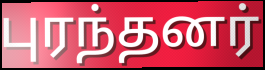
புரந்தனர்